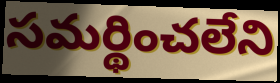
సమర్థించలేని